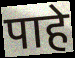
पाहे